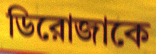
ডিরোজাকে